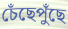
চেঁছেপুঁছে